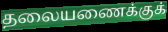
தலையணைக்குக்